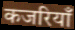
कजरियाँ